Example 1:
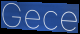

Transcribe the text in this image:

Gece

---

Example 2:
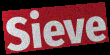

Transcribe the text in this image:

Sieve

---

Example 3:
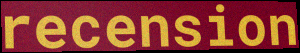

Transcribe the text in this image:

recension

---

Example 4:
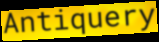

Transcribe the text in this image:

Antiquery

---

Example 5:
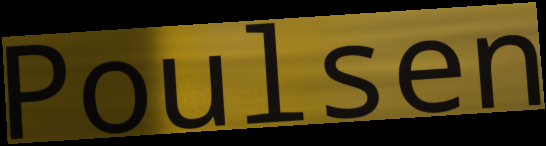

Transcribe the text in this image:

Poulsen